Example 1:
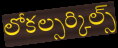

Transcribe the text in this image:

లోకల్సర్కిల్స్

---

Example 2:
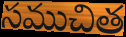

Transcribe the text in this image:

సముచిత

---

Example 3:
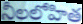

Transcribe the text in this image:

నీలలోహిత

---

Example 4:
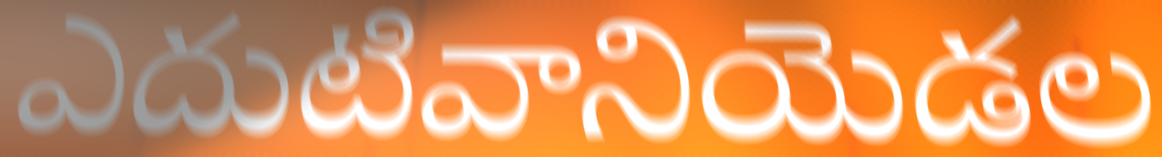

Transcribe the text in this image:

ఎదుటివానియెడల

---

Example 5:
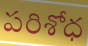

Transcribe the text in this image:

పరిశోధ